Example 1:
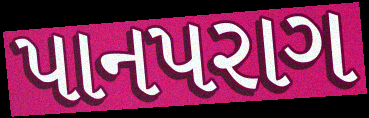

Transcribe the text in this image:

પાનપરાગ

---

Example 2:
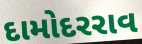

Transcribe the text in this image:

દામોદરરાવ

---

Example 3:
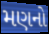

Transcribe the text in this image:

મણનો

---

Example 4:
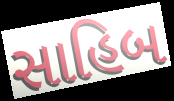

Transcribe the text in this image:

સાહિબ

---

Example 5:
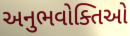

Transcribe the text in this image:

અનુભવોક્તિઓ